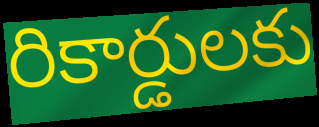
రికార్డులకు